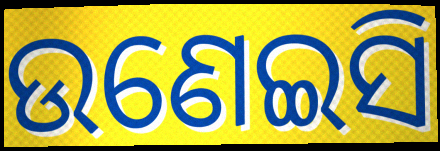
ଉଣେଇସି